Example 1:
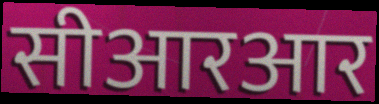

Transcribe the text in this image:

सीआरआर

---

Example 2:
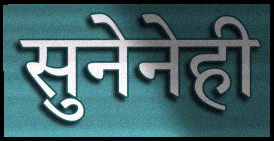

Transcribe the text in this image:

सुनेनेही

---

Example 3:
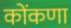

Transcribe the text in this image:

कोंकणा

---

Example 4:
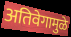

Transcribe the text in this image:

अतिवेगामुळे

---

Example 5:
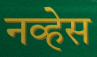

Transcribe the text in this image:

नव्हेस